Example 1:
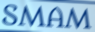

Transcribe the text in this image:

SMAM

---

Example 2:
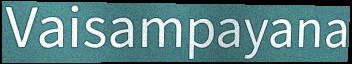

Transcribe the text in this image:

Vaisampayana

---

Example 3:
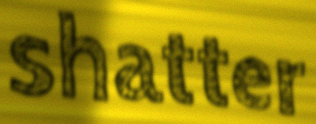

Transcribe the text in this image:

shatter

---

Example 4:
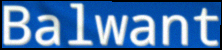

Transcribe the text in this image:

Balwant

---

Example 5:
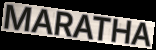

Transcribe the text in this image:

MARATHA